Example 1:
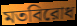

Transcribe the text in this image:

মতবিরোধ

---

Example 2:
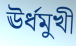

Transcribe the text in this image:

ঊর্ধমুখী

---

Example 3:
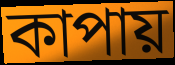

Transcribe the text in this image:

কাপায়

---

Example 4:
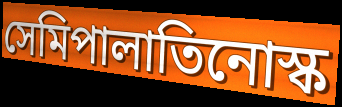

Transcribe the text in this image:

সেমিপালাতিনোস্ক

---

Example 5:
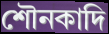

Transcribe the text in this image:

শৌনকাদি